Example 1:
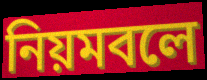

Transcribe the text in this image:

নিয়মবলে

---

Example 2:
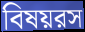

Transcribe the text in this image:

বিষয়রস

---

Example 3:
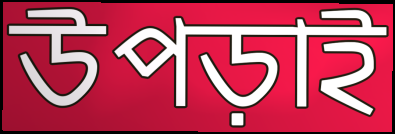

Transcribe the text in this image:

উপড়াই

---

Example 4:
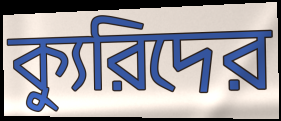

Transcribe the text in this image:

ক্যুরিদের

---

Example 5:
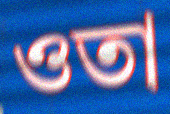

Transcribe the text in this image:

ওতা